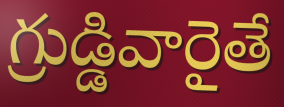
గ్రుడ్డివారైతే